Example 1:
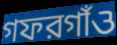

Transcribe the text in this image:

গফরগাঁও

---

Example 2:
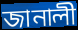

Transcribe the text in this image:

জানালী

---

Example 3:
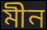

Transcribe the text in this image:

মীন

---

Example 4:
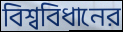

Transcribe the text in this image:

বিশ্ববিধানের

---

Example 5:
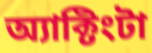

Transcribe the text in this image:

অ্যাক্টিংটা